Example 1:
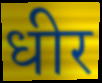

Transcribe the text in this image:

धीर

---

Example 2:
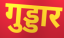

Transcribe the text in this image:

गुड्डार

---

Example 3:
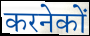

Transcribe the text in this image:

करनेकों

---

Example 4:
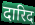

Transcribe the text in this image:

दारिद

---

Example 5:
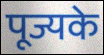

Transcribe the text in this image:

पूज्यके